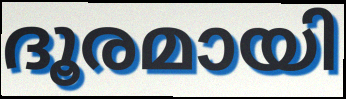
ദൂരമായി